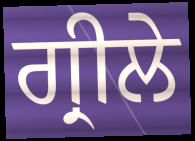
ਗ੍ਰੀਲੇ